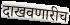
दाखवणारीच